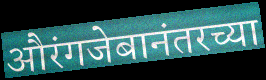
औरंगजेबानंतरच्या